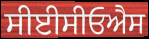
ਸੀਈਸੀਓਐਸ